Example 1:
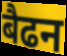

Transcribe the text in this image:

बैढन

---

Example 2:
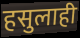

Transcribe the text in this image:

हसुलाही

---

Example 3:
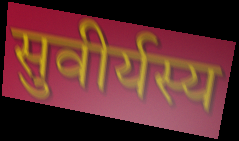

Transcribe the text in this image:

सुवीर्यस्य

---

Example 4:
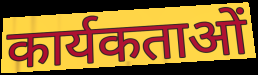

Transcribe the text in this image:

कार्यकताओं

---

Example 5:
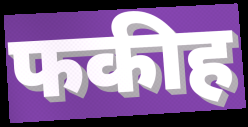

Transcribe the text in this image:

फकीह